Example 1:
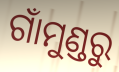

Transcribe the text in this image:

ଗାଁମୁଣ୍ଡରୁ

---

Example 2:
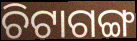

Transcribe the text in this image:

ଚିଟାଗଙ୍ଗ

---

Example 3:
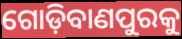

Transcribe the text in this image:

ଗୋଡ଼ିବାଣପୁରକୁ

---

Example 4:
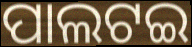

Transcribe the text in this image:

ପାଲଟଇ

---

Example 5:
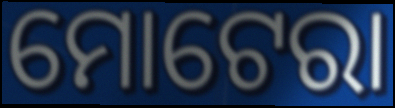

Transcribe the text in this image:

ମୋଟେରା